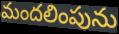
మందలింపును